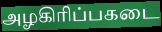
அழகிரிப்பகடை